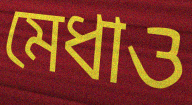
মেধাও